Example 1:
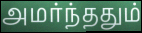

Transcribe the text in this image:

அமர்ந்ததும்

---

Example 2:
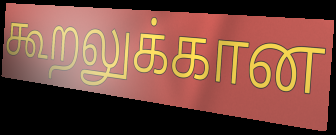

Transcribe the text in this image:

கூறலுக்கான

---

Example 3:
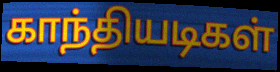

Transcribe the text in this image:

காந்தியடிகள்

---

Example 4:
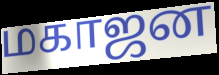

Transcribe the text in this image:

மகாஜன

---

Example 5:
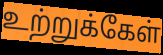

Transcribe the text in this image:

உற்றுக்கேள்